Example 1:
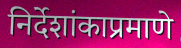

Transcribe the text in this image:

निर्देशांकाप्रमाणे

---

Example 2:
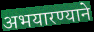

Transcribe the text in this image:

अभयारण्याने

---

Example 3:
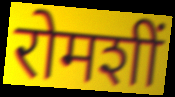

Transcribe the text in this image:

रोमशीं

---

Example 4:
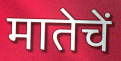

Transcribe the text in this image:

मातेचें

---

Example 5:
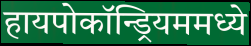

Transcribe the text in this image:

हायपोकॉन्ड्रियममध्ये